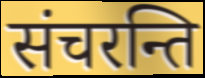
संचरन्ति